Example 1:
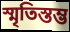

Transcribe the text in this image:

স্মৃতিস্তম্ভ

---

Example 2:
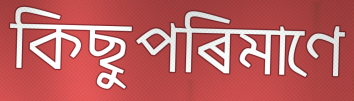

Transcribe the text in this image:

কিছুপৰিমাণে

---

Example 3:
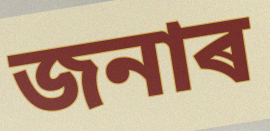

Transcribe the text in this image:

জনাৰ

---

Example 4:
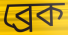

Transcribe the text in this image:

ব্ৰেক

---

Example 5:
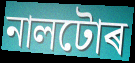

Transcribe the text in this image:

নালটোৰ